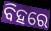
ବିହରେ